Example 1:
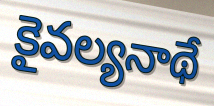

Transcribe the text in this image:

కైవల్యనాథే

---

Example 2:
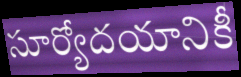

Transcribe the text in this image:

సూర్యోదయానికీ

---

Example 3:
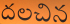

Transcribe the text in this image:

దలచిన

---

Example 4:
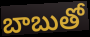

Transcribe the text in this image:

బాబుతో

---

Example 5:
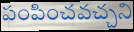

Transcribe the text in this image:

పంపించవచ్చని